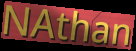
NAthan